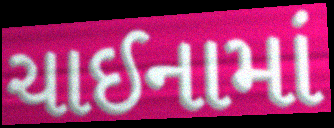
ચાઈનામાં